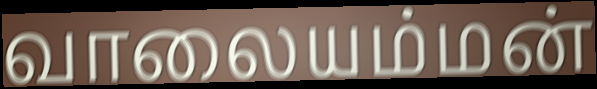
வாலையம்மன்